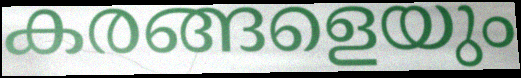
കരങ്ങളെയും